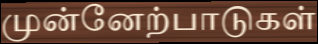
முன்னேற்பாடுகள்